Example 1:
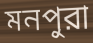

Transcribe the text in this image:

মনপুরা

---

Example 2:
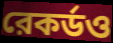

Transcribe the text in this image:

রেকর্ডও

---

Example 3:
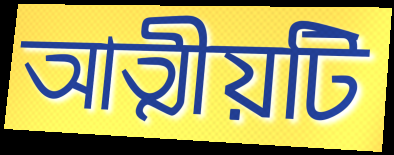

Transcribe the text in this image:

আত্মীয়টি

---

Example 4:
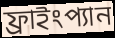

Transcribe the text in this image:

ফ্রাইংপ্যান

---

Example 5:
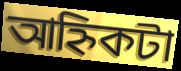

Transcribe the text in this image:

আহ্নিকটা